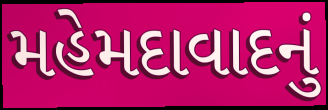
મહેમદાવાદનું